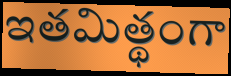
ఇతమిత్థంగా